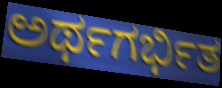
ಅರ್ಥಗರ್ಭಿತ